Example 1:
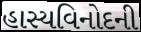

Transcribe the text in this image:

હાસ્યવિનોદની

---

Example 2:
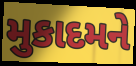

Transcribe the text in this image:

મુકાદમને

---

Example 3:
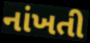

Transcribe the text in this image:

નાંખતી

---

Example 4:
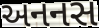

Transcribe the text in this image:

અનનસ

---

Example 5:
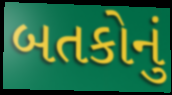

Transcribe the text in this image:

બતકોનું